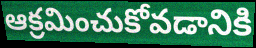
ఆక్రమించుకోవడానికి